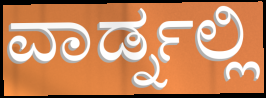
ವಾರ್ಡ್ನಲ್ಲಿ